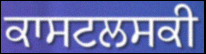
ਕਾਸਟਲਸਕੀ